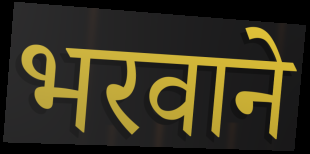
भरवाने